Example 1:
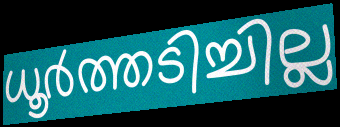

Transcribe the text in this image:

ധൂർത്തടിച്ചില്ല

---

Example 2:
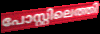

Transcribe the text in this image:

പോസ്റ്റിലെത്തി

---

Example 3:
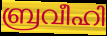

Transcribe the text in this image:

ബ്രവീഹി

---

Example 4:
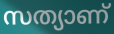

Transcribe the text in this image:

സത്യാണ്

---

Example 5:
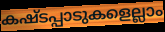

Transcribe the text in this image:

കഷ്ടപ്പാടുകളെല്ലാം